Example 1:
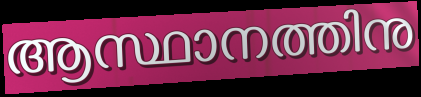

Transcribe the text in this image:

ആസ്ഥാനത്തിനു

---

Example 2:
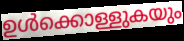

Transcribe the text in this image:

ഉൾക്കൊള്ളുകയും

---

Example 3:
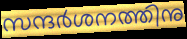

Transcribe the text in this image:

സന്ദർശനത്തിനു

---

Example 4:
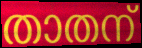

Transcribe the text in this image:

താതന്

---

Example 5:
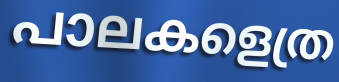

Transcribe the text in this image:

പാലകളെത്ര